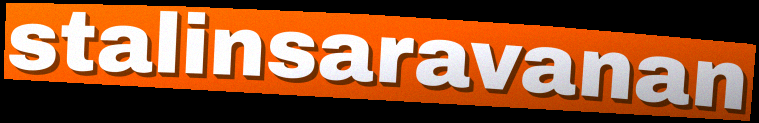
stalinsaravanan